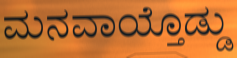
ಮನವಾಯ್ತೊಡ್ಡು